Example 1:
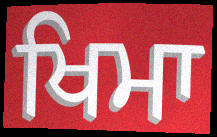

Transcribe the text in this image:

ਖਿਮਾ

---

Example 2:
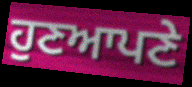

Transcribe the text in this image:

ਹੁਣਆਪਣੇ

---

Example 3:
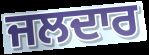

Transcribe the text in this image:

ਜਲਦਾਰ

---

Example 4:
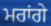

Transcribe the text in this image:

ਮਰਾਂਗੇ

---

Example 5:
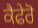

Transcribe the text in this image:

ਕੈਫੇਰੋ